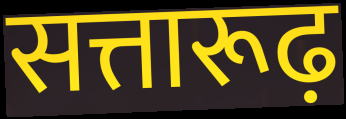
सत्तारूढ़